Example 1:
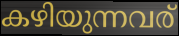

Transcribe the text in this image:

കഴിയുന്നവര്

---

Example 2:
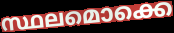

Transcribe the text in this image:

സ്ഥലമൊക്കെ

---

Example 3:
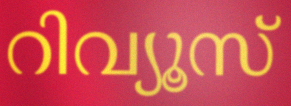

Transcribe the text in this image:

റിവ്യൂസ്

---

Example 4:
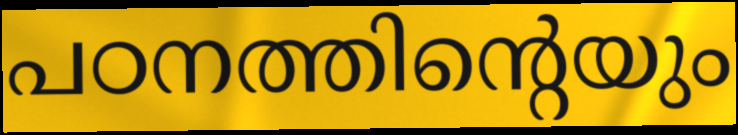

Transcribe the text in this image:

പഠനത്തിന്റെയും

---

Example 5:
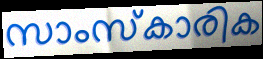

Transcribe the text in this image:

സാംസ്കാരിക